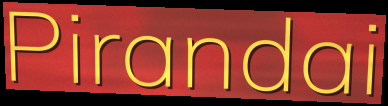
Pirandai